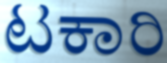
ಟಕಾರಿ